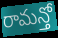
రామన్తో